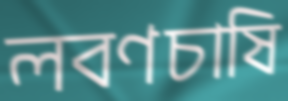
লবণচাষি